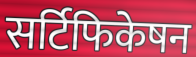
सर्टिफिकेषन